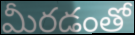
మీరడంతో